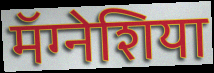
मॅग्‍नेशिया